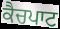
ਕੈਚਪਾਟ